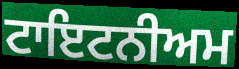
ਟਾਇਟਨੀਅਮ